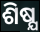
ଶିଷ୍ଯ